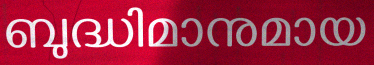
ബുദ്ധിമാനുമായ